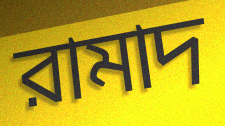
রামাদ